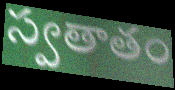
స్వతాతం